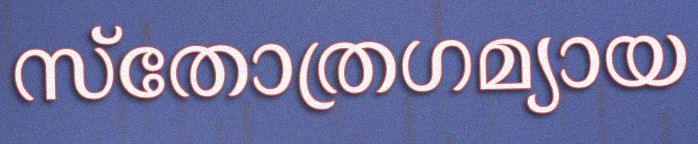
സ്തോത്രഗമ്യായ